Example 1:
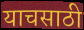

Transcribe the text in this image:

याचसाठी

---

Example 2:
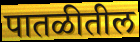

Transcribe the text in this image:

पातळीतील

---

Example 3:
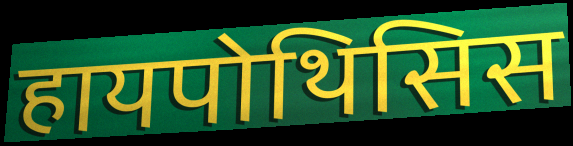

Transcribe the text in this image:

हायपोथिसिस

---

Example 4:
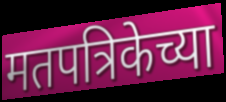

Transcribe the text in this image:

मतपत्रिकेच्या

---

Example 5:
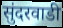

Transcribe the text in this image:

सुंदरवाडी